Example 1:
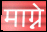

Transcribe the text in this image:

माग्ने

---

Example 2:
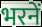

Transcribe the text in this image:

भरनें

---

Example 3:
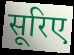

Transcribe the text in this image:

सूरिए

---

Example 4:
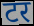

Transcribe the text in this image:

टर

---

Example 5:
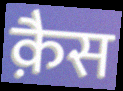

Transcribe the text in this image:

क़ैस